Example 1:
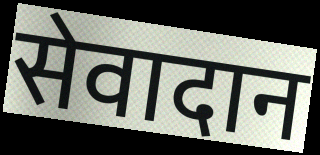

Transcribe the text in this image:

सेवादान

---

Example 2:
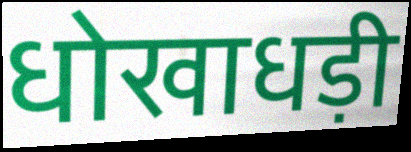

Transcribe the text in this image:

धोखाधड़ी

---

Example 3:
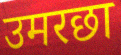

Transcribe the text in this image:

उमरछा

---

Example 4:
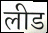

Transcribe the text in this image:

लीड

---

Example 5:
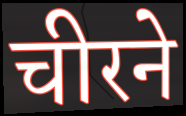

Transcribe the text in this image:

चीरने